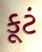
કૂટં